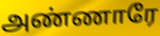
அண்ணாரே